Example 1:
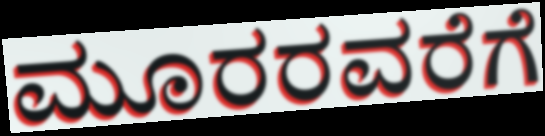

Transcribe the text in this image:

ಮೂರರವರೆಗೆ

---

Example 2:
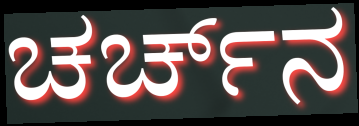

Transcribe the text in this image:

ಚರ್ಚ್‌ನ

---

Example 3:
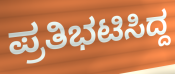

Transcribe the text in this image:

ಪ್ರತಿಭಟಿಸಿದ್ದ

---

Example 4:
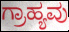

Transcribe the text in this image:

ಗ್ರಾಹ್ಯವು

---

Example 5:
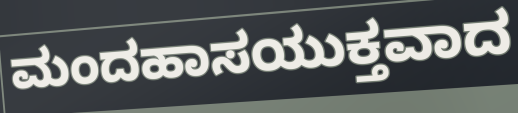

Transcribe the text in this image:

ಮಂದಹಾಸಯುಕ್ತವಾದ